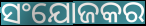
ସଂଯୋଜକର